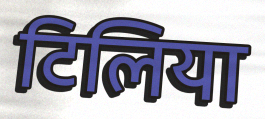
टिलिया